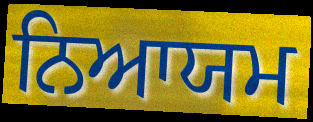
ਨਿਆਯਮ